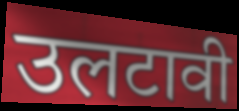
उलटावी